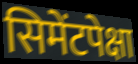
सिमेंटपेक्षा